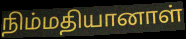
நிம்மதியானாள்